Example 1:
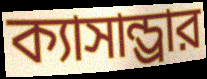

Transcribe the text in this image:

ক্যাসান্ড্রার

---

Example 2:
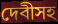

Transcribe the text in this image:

দেবীসহ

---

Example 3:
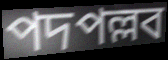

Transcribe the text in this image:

পদপল্লব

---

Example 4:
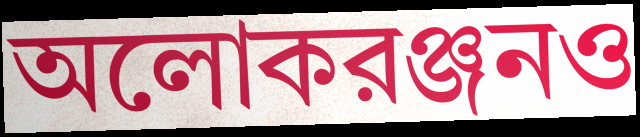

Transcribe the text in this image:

অলোকরঞ্জনও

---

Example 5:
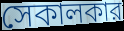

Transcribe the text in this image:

সেকালকার